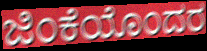
ಜಿಂಕೆಯೊಂದರ